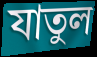
যাতুল